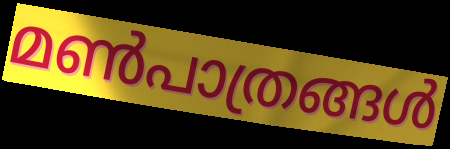
മൺപാത്രങ്ങൾ